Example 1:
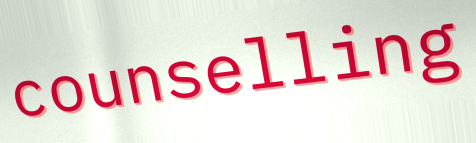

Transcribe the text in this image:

counselling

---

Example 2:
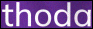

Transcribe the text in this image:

thoda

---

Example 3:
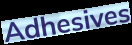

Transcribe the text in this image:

Adhesives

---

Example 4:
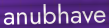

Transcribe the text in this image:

anubhave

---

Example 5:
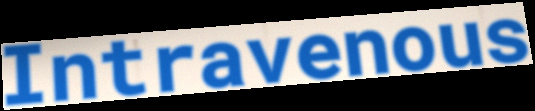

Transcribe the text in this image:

Intravenous